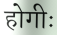
होगीः